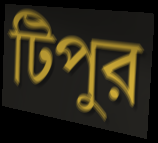
টিপুর